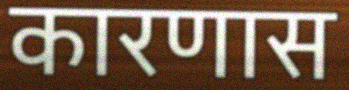
कारणास